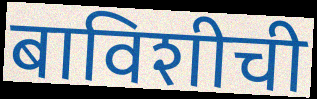
बाविशीची